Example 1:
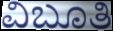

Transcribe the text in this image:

ವಿಬೂತಿ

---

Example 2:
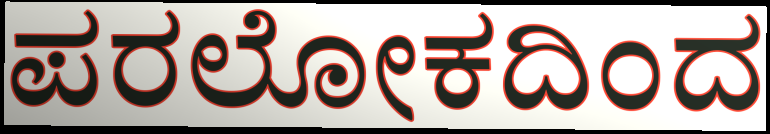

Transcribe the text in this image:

ಪರಲೋಕದಿಂದ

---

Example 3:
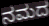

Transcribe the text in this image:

ನಮದ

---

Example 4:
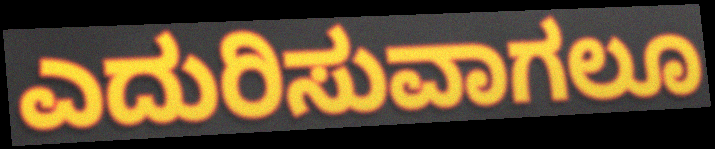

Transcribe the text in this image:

ಎದುರಿಸುವಾಗಲೂ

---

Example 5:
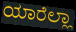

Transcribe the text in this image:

ಯಾರೆಲ್ಲಾ